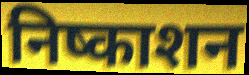
निष्काशन